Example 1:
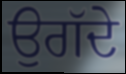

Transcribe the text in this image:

ਉਗੱਦੇ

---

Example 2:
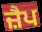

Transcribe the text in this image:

ਜ਼ੈਪ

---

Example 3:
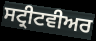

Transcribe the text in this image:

ਸਟ੍ਰੀਟਵੀਅਰ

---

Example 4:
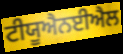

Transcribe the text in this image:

ਟੀਯੂਐਨਈਐਲ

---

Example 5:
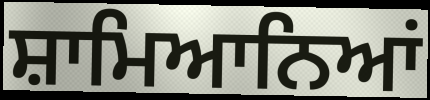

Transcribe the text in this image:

ਸ਼ਾਮਿਆਨਿਆਂ